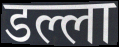
डल्ला